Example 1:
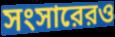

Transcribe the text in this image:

সংসারেরও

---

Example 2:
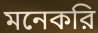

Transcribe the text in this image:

মনেকরি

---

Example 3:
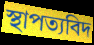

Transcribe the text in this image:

স্থাপত্যবিদ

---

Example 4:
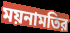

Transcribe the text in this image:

ময়নামতির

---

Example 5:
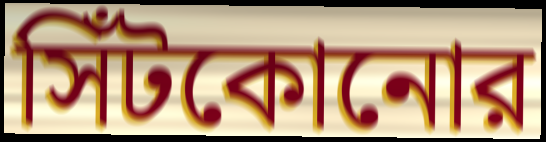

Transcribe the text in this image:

সিঁটকোনোর